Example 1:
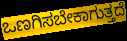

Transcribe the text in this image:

ಒಣಗಿಸಬೇಕಾಗುತ್ತದೆ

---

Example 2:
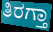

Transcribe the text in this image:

ತಿರಗ್ತಾ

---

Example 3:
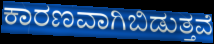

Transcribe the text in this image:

ಕಾರಣವಾಗಿಬಿಡುತ್ತವೆ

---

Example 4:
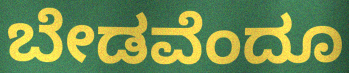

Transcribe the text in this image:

ಬೇಡವೆಂದೂ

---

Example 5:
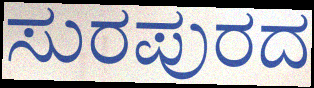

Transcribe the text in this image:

ಸುರಪುರದ